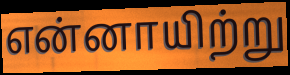
என்னாயிற்று